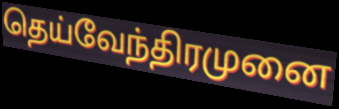
தெய்வேந்திரமுனை